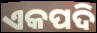
ଏକପଦି